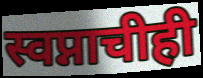
स्वप्नाचीही